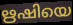
ഋഷിയെ